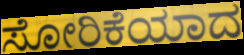
ಸೋರಿಕೆಯಾದ